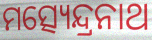
ମତ୍ସ୍ୟେନ୍ଦ୍ରନାଥ